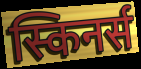
स्किनर्स